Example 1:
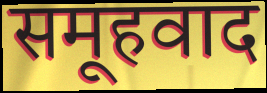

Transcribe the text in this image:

समूहवाद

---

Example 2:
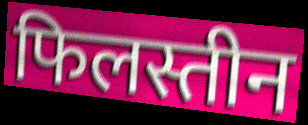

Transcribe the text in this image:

फिलस्तीन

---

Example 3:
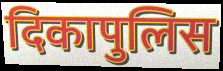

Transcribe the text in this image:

दिकापुलिस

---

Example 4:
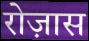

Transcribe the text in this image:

रोज़ास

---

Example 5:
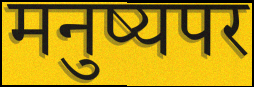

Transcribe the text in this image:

मनुष्यपर